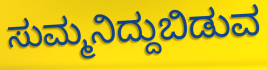
ಸುಮ್ಮನಿದ್ದುಬಿಡುವ